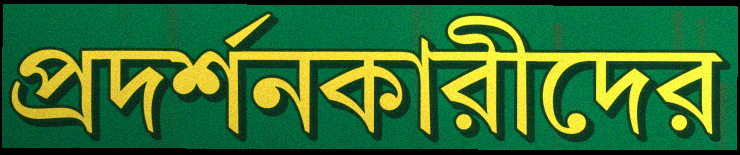
প্রদর্শনকারীদের